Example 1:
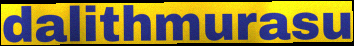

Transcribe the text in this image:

dalithmurasu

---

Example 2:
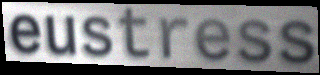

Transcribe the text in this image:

eustress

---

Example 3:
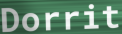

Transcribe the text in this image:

Dorrit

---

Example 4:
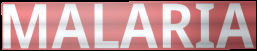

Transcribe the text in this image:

MALARIA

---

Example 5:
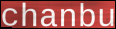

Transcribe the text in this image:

chanbu